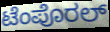
ಟೆಂಪೊರಲ್